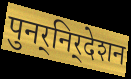
पुनर्निर्देशन